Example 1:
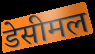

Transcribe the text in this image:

डेसीमल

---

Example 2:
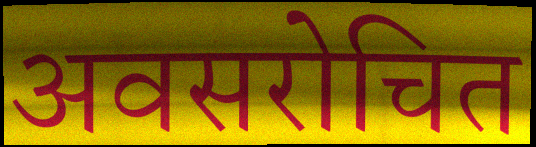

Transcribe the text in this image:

अवसरोचित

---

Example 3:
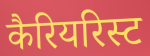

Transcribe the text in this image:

कैरियरिस्ट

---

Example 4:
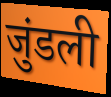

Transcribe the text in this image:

जुंडली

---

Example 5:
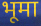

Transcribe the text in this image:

भूमा